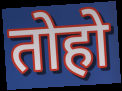
तोहो